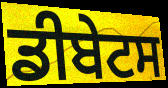
ਡੀਬੇਟਸ